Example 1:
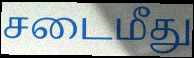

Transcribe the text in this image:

சடைமீது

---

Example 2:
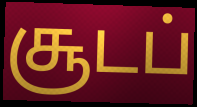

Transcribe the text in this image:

சூடப்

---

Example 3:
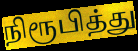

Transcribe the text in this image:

நிரூபித்து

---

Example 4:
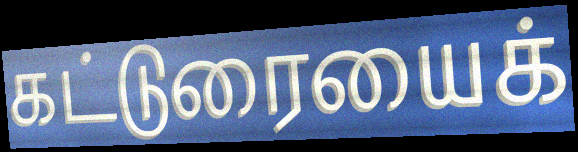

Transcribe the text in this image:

கட்டுரையைக்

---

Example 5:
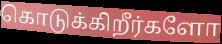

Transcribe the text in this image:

கொடுக்கிறீர்களோ